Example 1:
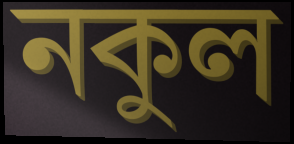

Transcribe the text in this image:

নকুল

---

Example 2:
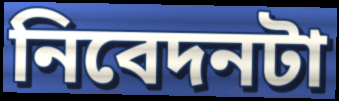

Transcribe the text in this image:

নিবেদনটা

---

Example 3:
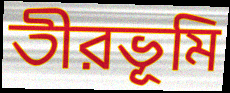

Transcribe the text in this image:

তীরভূমি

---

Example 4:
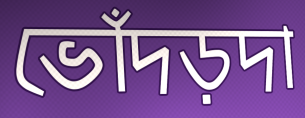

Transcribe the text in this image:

ভোঁদড়দা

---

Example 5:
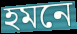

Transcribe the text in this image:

হমনে